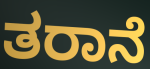
ತರಾನೆ